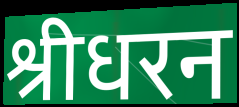
श्रीधरन